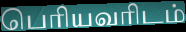
பெரியவரிடம்